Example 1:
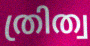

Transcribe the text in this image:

ത്രിത്വ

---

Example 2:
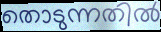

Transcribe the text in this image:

തൊടുന്നതിൽ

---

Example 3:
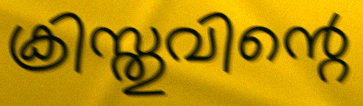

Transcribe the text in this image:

ക്രിസ്തുവിന്റെ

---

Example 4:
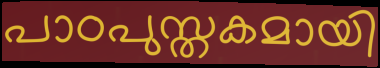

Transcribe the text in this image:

പാഠപുസ്തകമായി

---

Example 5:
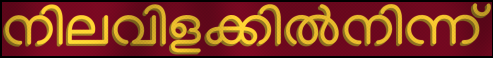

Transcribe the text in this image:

നിലവിളക്കിൽനിന്ന്